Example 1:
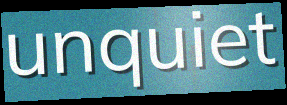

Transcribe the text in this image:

unquiet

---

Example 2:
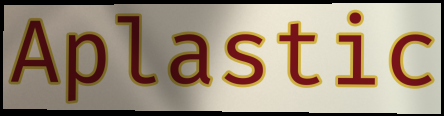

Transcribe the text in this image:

Aplastic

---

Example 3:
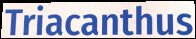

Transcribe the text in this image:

Triacanthus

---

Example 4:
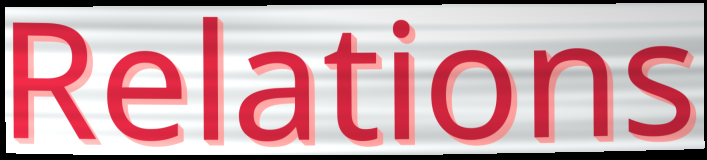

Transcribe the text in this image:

Relations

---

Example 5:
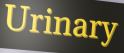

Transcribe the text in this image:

Urinary